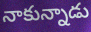
నాకున్నాడు